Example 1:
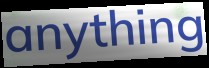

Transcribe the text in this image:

anything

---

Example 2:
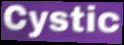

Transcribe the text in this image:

Cystic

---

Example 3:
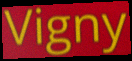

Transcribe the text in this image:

Vigny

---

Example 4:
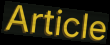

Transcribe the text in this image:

Article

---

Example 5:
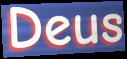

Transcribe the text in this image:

Deus